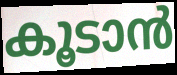
കൂടാൻ